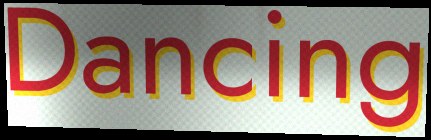
Dancing